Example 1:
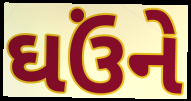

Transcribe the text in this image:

ઘઉંને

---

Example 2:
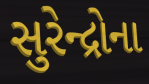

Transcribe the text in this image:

સુરેન્દ્રોના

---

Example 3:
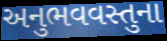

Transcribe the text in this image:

અનુભવવસ્તુના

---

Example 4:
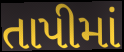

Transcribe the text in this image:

તાપીમાં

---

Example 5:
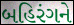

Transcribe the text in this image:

બહિરંગને